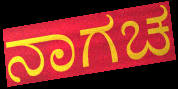
ನಾಗಚ